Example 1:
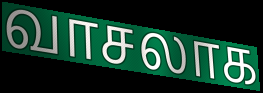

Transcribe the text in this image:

வாசலாக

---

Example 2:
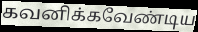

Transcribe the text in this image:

கவனிக்கவேண்டிய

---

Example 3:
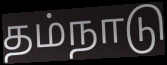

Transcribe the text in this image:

தம்நாடு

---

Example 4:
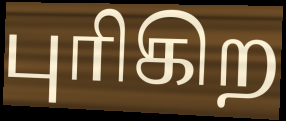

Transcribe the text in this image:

புரிகிற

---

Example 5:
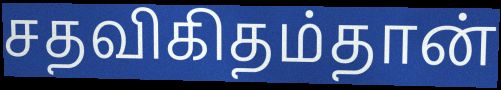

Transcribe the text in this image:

சதவிகிதம்தான்